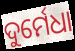
ଦୁର୍ମେଧା